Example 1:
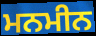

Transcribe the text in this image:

ਮਨਮੀਨ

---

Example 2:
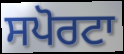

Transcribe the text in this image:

ਸਪੋਰਟਾ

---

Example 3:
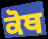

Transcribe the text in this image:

ਕੋਥ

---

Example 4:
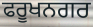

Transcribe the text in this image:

ਫਰੂਖਨਗਰ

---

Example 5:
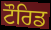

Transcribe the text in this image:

ਟੌਰਿਡ